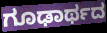
ಗೂಢಾರ್ಥದ